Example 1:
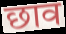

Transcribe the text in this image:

छाव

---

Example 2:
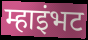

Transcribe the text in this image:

म्हाइंभट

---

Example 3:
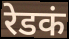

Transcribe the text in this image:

रेडकं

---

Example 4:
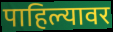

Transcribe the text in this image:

पाहिल्यावर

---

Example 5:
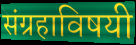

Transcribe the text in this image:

संग्रहाविषयी